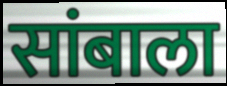
सांबाला